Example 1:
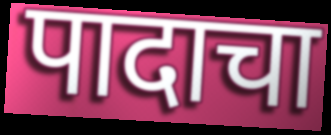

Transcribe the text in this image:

पादाचा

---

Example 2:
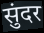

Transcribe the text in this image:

सुंदर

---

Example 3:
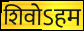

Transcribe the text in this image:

शिवोऽहम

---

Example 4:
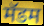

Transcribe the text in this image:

मॅडम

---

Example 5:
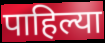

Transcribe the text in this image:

पाहिल्या